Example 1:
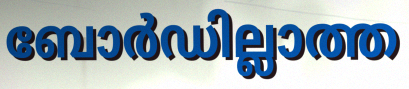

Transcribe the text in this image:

ബോർഡില്ലാത്ത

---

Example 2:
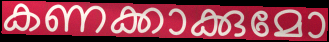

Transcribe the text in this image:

കണക്കാക്കുമോ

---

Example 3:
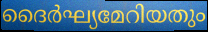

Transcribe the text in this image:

ദൈർഘ്യമേറിയതും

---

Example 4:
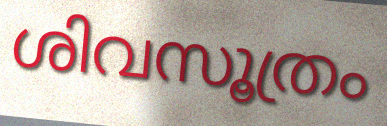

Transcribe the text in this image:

ശിവസൂത്രം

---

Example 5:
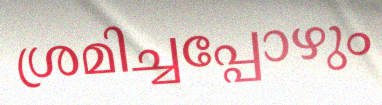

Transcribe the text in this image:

ശ്രമിച്ചപ്പോഴും